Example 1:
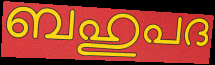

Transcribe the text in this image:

ബഹുപദ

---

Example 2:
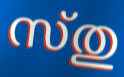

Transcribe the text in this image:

സ്‌തു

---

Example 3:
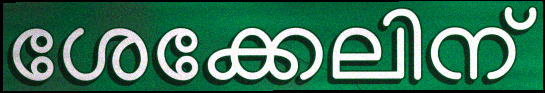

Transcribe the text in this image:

ശേക്കേലിന്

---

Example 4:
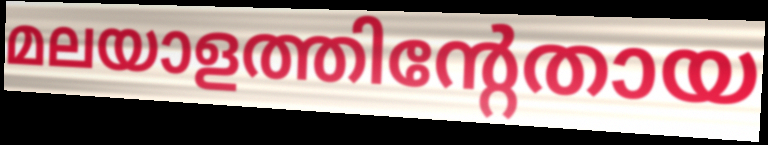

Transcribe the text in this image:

മലയാളത്തിന്റേതായ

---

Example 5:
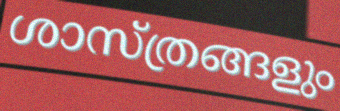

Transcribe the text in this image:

ശാസ്ത്രങ്ങളും